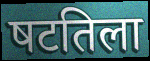
षटतिला